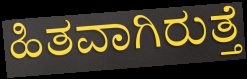
ಹಿತವಾಗಿರುತ್ತೆ